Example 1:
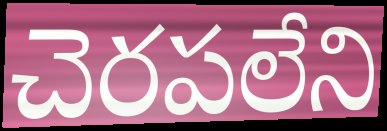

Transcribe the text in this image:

చెరపలేని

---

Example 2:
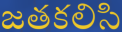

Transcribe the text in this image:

జతకలిసి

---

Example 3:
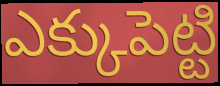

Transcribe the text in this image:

ఎక్కుపెట్టి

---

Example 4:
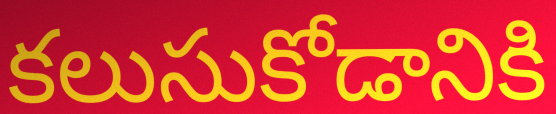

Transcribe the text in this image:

కలుసుకోడానికి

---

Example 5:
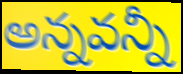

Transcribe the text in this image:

అన్నవన్నీ